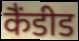
कैंडीड